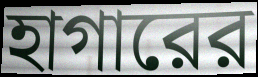
হাগারের